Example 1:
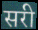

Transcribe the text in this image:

सरी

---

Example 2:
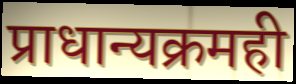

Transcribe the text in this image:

प्राधान्यक्रमही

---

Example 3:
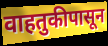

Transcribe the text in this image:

वाहतुकीपासून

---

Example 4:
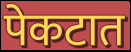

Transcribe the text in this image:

पेकटात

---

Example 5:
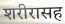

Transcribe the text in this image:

शरीरासह